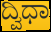
ದ್ವಿಧಾ